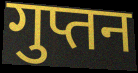
गुप्तन